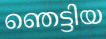
ഞെട്ടിയ